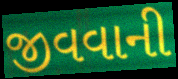
જીવવાની